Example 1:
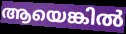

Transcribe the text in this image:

ആയെങ്കിൽ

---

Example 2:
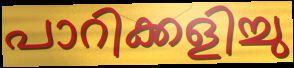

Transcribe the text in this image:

പാറിക്കളിച്ചു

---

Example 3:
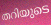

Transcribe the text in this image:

തറിയുടെ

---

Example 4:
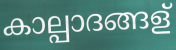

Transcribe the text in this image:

കാല്പാദങ്ങള്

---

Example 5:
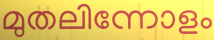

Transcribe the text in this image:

മുതലിന്നോളം